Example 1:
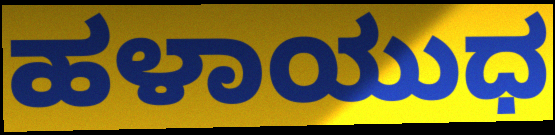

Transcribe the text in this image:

ಹಳಾಯುಧ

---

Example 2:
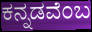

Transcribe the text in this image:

ಕನ್ನಡವೆಂಬ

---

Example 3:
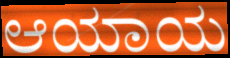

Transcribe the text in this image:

ಆಯಾಯ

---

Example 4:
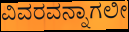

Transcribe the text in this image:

ವಿವರವನ್ನಾಗಲೀ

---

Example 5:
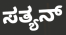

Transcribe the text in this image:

ಸತ್ಯನ್